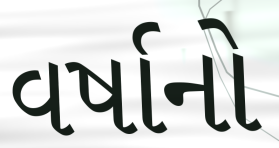
વર્ષાનો